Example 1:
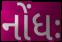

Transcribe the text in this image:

નોંધઃ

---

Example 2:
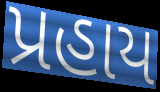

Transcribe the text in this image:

પ્રહાય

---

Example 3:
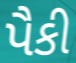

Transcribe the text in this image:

પૈકી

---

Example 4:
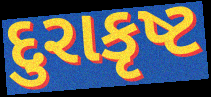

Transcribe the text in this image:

દુરાકૃષ્ટ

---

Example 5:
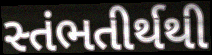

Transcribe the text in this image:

સ્તંભતીર્થથી